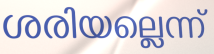
ശരിയല്ലെന്ന്